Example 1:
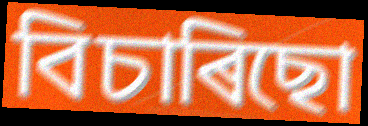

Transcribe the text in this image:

বিচাৰিছো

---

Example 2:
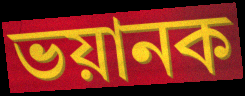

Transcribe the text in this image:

ভয়ানক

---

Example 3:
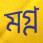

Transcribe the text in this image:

মগ্ন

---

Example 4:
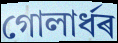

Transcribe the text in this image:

গোলাৰ্ধৰ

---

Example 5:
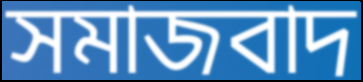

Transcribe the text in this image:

সমাজবাদ